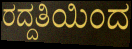
ರದ್ದತಿಯಿಂದ